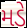
મડે